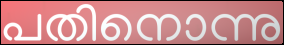
പതിനൊന്നു